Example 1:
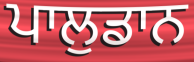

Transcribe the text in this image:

ਪਾਲੁਡਾਨ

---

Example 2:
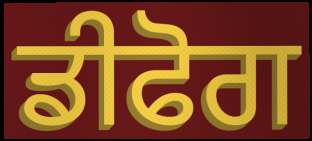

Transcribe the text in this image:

ਡੀਫੋਗ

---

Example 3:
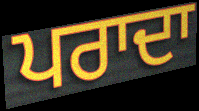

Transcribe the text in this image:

ਪਰਾਦਾ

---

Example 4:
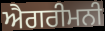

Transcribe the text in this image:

ਐਗਰੀਮਨੀ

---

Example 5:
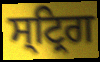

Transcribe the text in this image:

ਸ੍ਟ੍ਰਿਗ